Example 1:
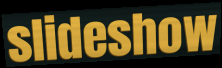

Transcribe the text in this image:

slideshow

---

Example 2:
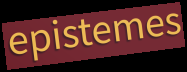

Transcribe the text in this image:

epistemes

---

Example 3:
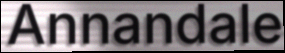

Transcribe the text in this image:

Annandale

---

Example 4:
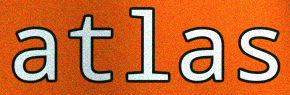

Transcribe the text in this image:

atlas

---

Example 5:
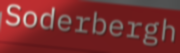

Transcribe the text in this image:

Soderbergh